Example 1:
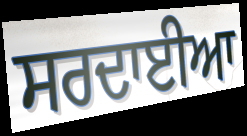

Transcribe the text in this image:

ਸਰਦਾਈਆ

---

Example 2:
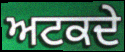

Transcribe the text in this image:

ਅਟਕਦੇ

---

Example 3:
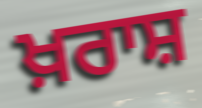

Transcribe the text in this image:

ਖ਼ਰਾਸ਼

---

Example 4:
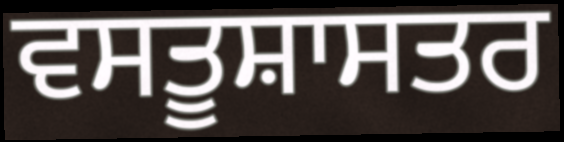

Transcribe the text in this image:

ਵਸਤੂਸ਼ਾਸਤਰ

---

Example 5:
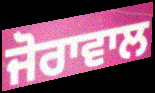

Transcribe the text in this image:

ਜੋਰਾਵਾਲ